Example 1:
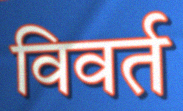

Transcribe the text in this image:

विवर्त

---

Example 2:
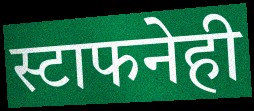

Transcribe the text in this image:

स्टाफनेही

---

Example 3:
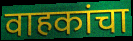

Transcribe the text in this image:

वाहकांचा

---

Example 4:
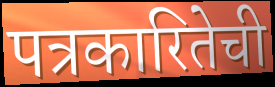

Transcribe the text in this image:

पत्रकारितेची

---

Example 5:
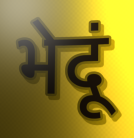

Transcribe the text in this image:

भेदूं